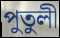
পুতুলী